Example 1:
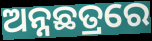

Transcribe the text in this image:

ଅନ୍ନଛତ୍ରରେ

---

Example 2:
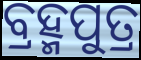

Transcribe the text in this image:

ବ୍ରହ୍ମପୁତ୍ର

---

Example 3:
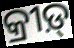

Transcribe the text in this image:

କ୍ରୀଡ଼୍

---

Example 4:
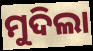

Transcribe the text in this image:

ମୁଦିଲା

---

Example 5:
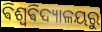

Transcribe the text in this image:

ଵିଶ୍ୱଵିଦ୍ୟାଳୟରୁ